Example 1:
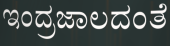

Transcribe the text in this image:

ಇಂದ್ರಜಾಲದಂತೆ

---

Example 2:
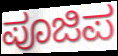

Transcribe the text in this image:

ಪೂಜಿಪ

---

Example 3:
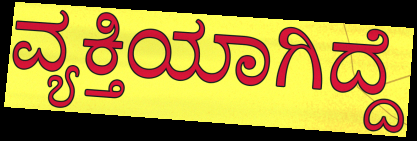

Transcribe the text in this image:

ವ್ಯಕ್ತಿಯಾಗಿದ್ದೆ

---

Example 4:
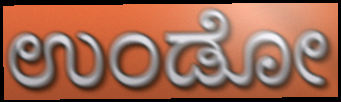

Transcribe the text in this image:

ಉಂಡೋ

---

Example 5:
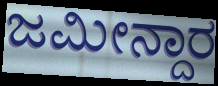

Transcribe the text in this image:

ಜಮೀನ್ದಾರ